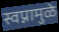
स्वप्नामुळे